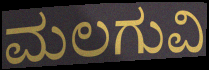
ಮಲಗುವಿ